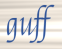
guff